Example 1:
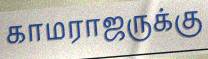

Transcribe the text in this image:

காமராஜருக்கு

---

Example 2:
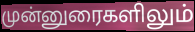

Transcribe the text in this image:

முன்னுரைகளிலும்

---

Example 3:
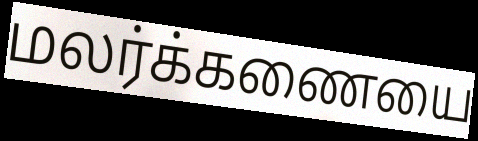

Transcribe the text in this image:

மலர்க்கணையை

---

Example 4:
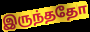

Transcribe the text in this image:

இருந்ததோ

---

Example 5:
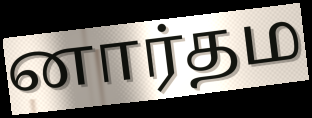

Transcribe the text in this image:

னார்தம